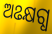
ଅଌକ୍ଷଗ୍ଧ